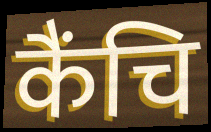
कैंचि